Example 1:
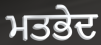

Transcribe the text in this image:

ਮਤਭੇਦ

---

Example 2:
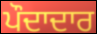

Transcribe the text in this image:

ਪੌਦਾਦਾਰ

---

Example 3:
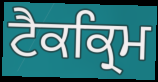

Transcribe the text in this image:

ਟੈਕਕ੍ਰਿਮ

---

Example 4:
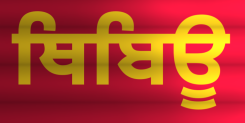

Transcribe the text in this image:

ਥਿਬਿਊ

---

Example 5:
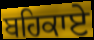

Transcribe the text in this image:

ਬਹਿਕਾਏ